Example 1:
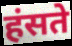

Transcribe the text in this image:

हंसते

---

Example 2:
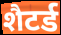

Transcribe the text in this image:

शैटर्ड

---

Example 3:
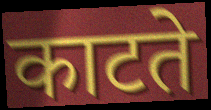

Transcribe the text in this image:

काटते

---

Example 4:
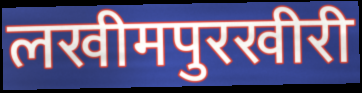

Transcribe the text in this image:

लखीमपुरखीरी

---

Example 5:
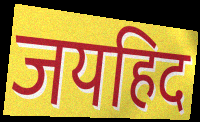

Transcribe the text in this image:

जयहिद